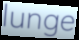
lunge